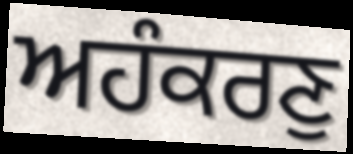
ਅਹੰਕਰਣੁ